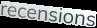
recensions